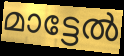
മാട്ടേൽ